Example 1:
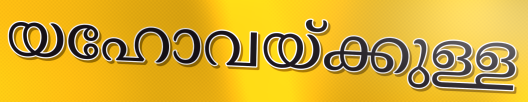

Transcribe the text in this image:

യഹോവയ്ക്കുള്ള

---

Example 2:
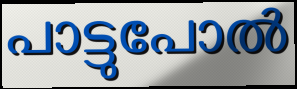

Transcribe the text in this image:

പാട്ടുപോൽ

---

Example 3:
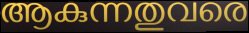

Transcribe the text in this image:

ആകുന്നതുവരെ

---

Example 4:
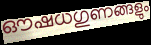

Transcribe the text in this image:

ഔഷധഗുണങ്ങളും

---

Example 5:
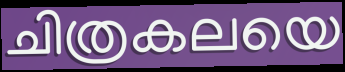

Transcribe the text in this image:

ചിത്രകലയെ